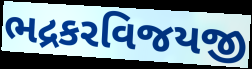
ભદ્રકરવિજયજી